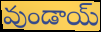
వుండాయ్